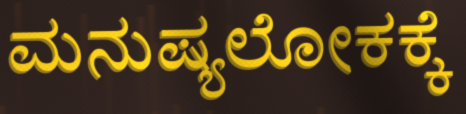
ಮನುಷ್ಯಲೋಕಕ್ಕೆ